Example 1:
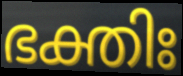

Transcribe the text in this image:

ഭക്തിഃ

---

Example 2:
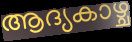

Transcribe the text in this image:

ആദ്യകാഴ്ച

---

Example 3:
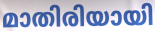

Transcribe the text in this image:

മാതിരിയായി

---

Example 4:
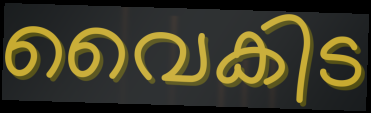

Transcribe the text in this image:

വൈകിട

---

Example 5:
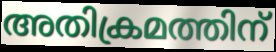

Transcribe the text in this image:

അതിക്രമത്തിന്